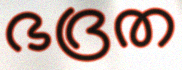
ഭദ്രത